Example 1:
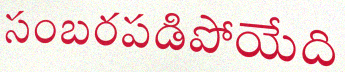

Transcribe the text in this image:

సంబరపడిపోయేది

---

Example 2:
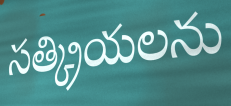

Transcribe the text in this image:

సత్క్రియలను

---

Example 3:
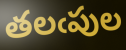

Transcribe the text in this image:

తలఁపుల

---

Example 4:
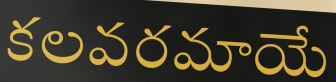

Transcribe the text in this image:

కలవరమాయే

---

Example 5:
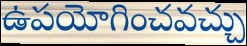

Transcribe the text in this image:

ఉపయోగించవచ్చు